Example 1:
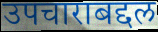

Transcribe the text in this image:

उपचाराबद्दल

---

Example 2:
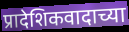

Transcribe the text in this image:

प्रादेशिकवादाच्या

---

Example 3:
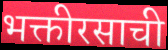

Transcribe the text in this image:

भक्तीरसाची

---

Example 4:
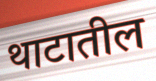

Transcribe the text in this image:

थाटातील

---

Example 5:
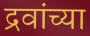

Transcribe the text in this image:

द्रवांच्या